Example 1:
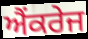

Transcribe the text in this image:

ਐਂਕਰੇਜ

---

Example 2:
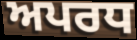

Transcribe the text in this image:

ਅਪਰਧ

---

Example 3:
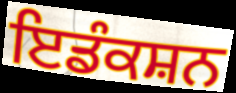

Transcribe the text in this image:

ਇਡੰਕਸ਼ਨ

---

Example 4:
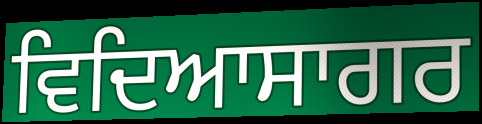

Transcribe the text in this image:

ਵਿਦਿਆਸਾਗਰ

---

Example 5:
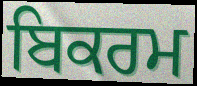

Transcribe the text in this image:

ਬਿਕਰਮ